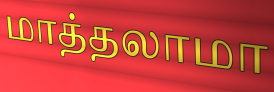
மாத்தலாமா